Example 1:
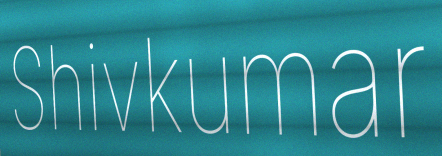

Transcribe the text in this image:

Shivkumar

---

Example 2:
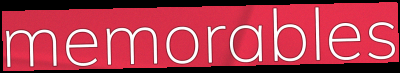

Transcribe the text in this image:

memorables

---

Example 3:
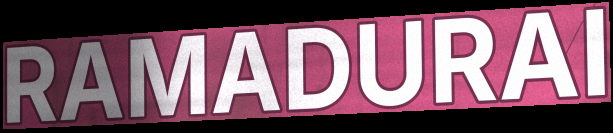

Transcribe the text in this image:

RAMADURAI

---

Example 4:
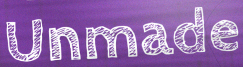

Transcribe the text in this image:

Unmade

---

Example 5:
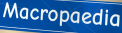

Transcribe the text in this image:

Macropaedia